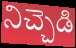
నిచ్చెడి